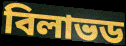
বিলাভড